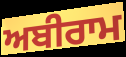
ਅਬੀਰਾਮ